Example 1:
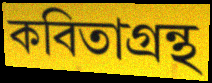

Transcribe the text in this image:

কবিতাগ্রন্থ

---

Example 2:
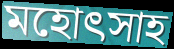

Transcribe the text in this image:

মহোৎসাহ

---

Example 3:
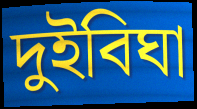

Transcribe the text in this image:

দুইবিঘা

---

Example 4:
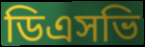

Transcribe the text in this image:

ডিএসভি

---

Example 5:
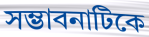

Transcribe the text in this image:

সম্ভাবনাটিকে